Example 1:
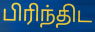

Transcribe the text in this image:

பிரிந்திட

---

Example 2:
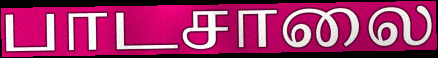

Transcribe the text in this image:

பாடசாலை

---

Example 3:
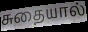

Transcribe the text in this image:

சுதையால்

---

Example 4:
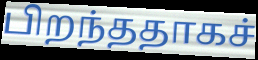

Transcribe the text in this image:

பிறந்ததாகச்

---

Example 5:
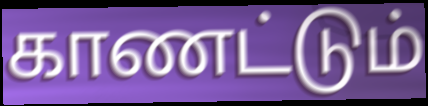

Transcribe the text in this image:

காணட்டும்